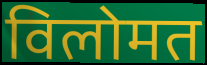
विलोमत